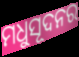
ମଧୁସୂଦନର